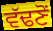
ਵੱਢਣੋਂ